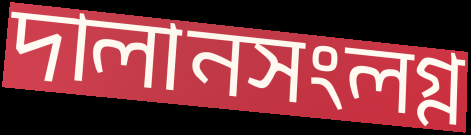
দালানসংলগ্ন